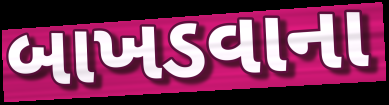
બાખડવાના